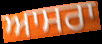
ਆਸਰਾ